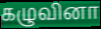
கழுவினா